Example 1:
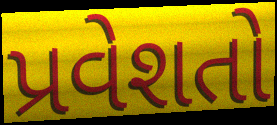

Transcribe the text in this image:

પ્રવેશતો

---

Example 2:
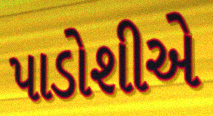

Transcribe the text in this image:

પાડોશીએ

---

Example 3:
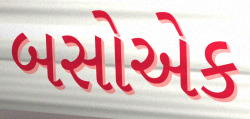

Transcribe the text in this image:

બસોએક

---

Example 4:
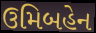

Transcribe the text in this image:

ઉમિબહેન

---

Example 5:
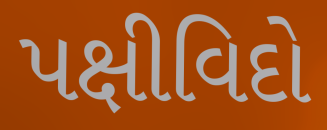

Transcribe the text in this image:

પક્ષીવિદો